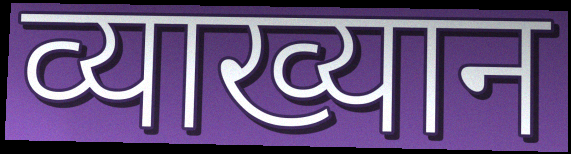
व्याख्यान